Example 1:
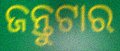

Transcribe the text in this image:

ଜନ୍ତୁଟାର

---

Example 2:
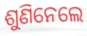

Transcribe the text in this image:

ଶୁଣିନେଲେ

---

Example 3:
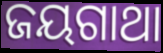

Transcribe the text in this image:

ଜୟଗାଥା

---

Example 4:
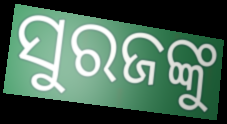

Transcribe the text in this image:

ସୁରଜଙ୍କୁ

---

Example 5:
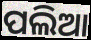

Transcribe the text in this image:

ପଲିଆ